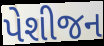
પેશીજન